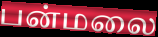
பன்மலை